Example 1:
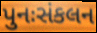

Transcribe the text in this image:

પુનઃસંકલન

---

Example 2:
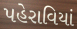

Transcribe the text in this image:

પહેરાવિયાં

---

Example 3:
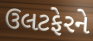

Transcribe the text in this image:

ઉલટફેરને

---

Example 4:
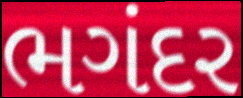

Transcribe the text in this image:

ભગંદર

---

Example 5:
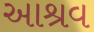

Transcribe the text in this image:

આશ્રવ